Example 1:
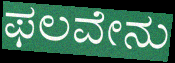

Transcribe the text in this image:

ಫಲವೇನು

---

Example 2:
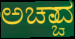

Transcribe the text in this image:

ಅಚ್ಚಾದ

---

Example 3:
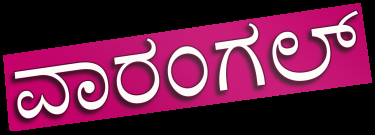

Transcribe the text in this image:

ವಾರಂಗಲ್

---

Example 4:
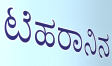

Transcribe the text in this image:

ಟೆಹರಾನಿನ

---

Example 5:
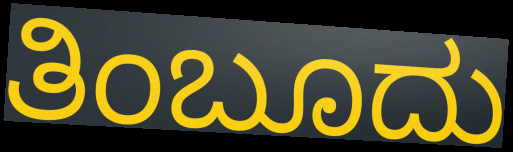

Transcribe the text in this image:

ತಿಂಬೂದು